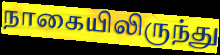
நாகையிலிருந்து